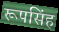
रूपसिंह